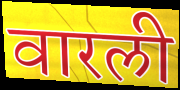
वारली